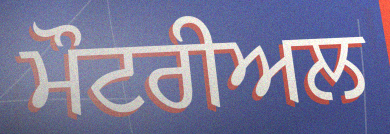
ਮੌਟਰੀਅਲ